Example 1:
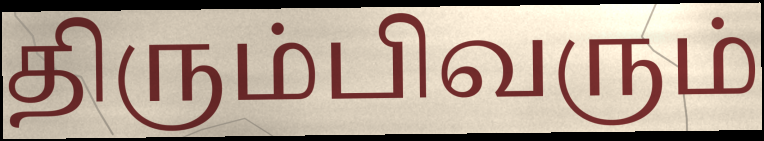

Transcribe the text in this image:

திரும்பிவரும்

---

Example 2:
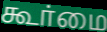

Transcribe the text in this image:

கூர்மை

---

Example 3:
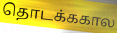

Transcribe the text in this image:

தொடக்ககால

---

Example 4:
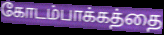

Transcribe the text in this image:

கோடம்பாக்கத்தை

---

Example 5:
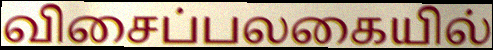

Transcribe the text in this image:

விசைப்பலகையில்